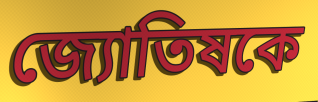
জ্যোতিষকে